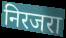
निरजरा